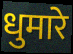
धुमारे